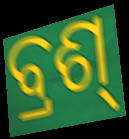
ବ୍ରଶ୍